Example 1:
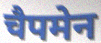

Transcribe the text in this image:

चैपमेन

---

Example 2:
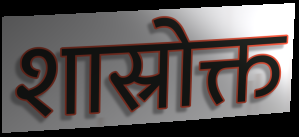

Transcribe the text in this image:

शास्रोक्त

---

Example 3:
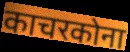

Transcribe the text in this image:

काचरकोना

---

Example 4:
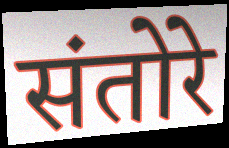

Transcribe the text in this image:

संतोरे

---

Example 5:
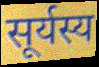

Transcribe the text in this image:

सूर्यस्य